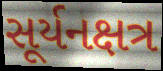
સૂર્યનક્ષત્ર